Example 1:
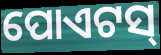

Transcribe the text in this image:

ପୋଏଟସ୍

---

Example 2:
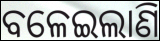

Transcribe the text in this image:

ବଳେଇଲାଣି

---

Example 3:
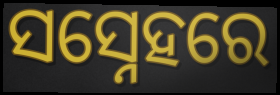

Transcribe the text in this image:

ସସ୍ନେହରେ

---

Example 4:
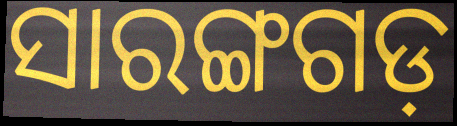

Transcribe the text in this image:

ସାରଙ୍ଗଗଡ଼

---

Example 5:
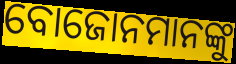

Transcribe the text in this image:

ବୋଜୋନମାନଙ୍କୁ